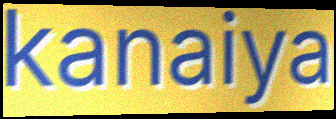
kanaiya